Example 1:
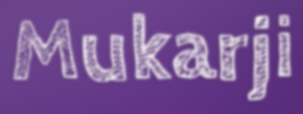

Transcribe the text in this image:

Mukarji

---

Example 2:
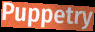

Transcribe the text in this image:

Puppetry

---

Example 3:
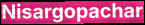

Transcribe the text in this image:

Nisargopachar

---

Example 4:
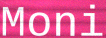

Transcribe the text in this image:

Moni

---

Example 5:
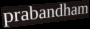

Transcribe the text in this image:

prabandham